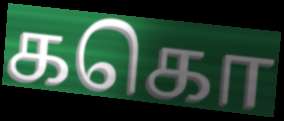
ககொ